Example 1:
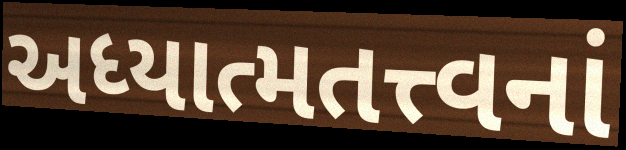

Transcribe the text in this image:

અધ્યાત્મતત્ત્વનાં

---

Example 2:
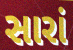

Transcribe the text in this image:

સારાં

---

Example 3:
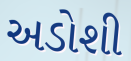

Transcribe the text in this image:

અડોશી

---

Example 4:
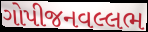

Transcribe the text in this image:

ગોપીજનવલ્લભ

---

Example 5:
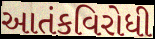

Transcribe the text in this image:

આતંકવિરોધી